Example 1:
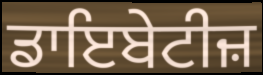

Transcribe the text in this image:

ਡਾਇਬੇਟੀਜ਼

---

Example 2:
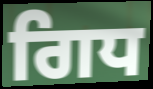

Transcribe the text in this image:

ਗਿਧ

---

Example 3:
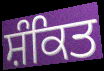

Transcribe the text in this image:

ਸ਼ੰਕਿਤ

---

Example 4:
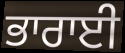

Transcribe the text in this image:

ਭਾਰਾਈ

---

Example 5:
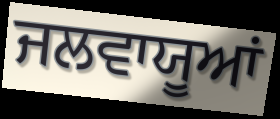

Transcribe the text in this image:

ਜਲਵਾਯੂਆਂ